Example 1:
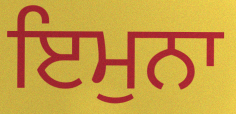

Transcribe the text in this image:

ਇਮੁਨਾ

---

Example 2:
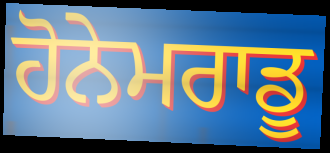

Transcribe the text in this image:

ਹੋਨੇਮਰਾਡੂ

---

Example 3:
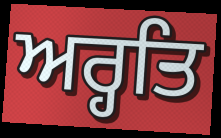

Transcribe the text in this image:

ਅਰ੍ਹਤਿ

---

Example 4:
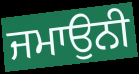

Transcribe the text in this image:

ਜਮਾਉਨੀ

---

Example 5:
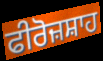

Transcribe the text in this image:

ਫੀਰੋਜ਼ਸ਼ਾਹ